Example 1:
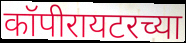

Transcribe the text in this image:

कॉपीरायटरच्या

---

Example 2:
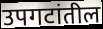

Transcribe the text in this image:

उपगटांतील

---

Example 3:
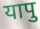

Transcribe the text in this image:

यापु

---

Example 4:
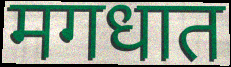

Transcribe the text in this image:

मगधात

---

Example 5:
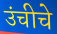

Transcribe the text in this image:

उंचीचे